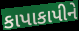
કાપાકાપીને